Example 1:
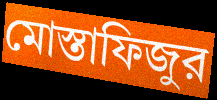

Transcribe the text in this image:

মোস্তাফিজুর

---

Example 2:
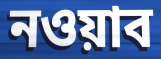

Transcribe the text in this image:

নওয়াব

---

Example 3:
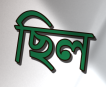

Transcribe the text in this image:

ছিল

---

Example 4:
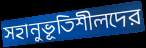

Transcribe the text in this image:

সহানুভূতিশীলদের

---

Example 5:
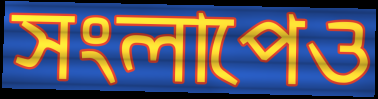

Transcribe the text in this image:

সংলাপেও